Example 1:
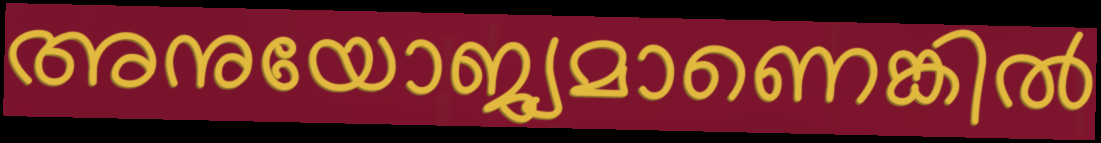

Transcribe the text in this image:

അനുയോജ്യമാണെങ്കിൽ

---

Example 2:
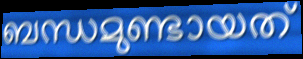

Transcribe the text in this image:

ബന്ധമുണ്ടായത്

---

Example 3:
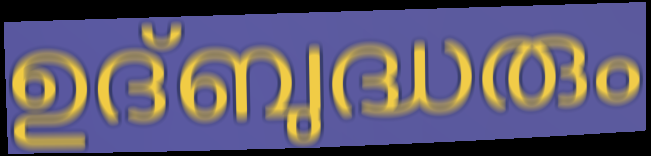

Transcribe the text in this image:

ഉദ്ബുദ്ധരും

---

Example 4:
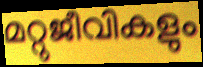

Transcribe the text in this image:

മറ്റുജീവികളും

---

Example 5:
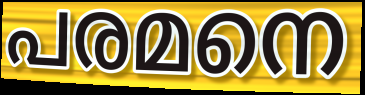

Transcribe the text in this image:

പരമനെ